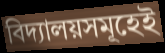
বিদ্যালয়সমূহেই